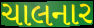
ચાલનાર